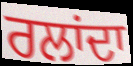
ਰਲਾਂਦਾ